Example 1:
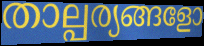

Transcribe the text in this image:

താല്പര്യങ്ങളോ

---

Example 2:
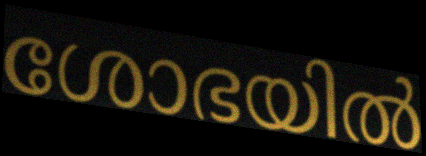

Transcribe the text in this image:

ശോഭയിൽ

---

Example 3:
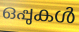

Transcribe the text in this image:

ഒപ്പുകൾ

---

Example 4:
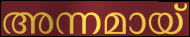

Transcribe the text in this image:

അന്നമായ്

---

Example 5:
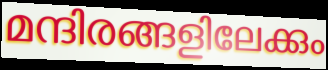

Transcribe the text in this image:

മന്ദിരങ്ങളിലേക്കും